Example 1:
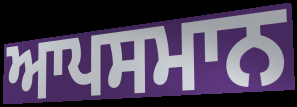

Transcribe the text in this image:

ਆਪਸਮਾਨ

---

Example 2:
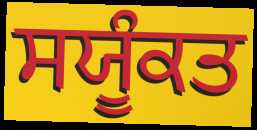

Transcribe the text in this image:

ਸਯੂੰਕਤ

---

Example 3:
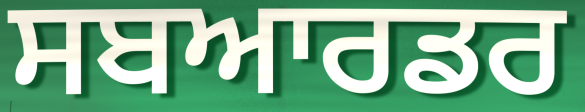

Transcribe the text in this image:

ਸਬਆਰਡਰ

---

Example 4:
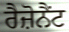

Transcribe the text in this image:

ਰੈਜ਼ੋਨੈਂਟ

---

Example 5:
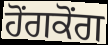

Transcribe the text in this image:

ਹੋਂਗਕੋਂਗ